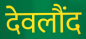
देवलौंद